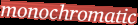
monochromatic